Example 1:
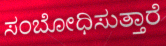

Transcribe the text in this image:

ಸಂಬೋಧಿಸುತ್ತಾರೆ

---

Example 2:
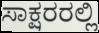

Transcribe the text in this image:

ಸಾಕ್ಷರರಲ್ಲಿ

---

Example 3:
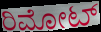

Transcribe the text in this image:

ರಿಮೋಟ್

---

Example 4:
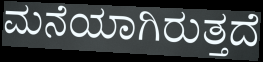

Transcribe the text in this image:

ಮನೆಯಾಗಿರುತ್ತದೆ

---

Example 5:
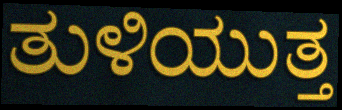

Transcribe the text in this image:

ತುಳಿಯುತ್ತ